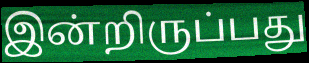
இன்றிருப்பது